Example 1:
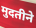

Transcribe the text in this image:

मुदतीने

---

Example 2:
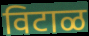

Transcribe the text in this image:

विटाळ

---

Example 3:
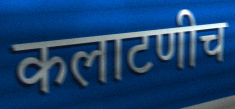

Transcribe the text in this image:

कलाटणीच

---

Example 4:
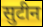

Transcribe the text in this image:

सुटीन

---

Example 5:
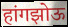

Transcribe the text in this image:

हांगझोऊ